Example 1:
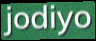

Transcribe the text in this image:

jodiyo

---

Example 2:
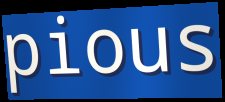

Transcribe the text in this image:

pious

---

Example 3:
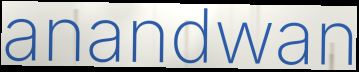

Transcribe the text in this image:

anandwan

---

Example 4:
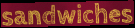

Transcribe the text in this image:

sandwiches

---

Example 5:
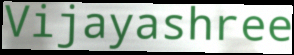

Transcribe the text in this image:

Vijayashree